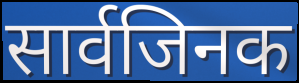
सार्वजिनक